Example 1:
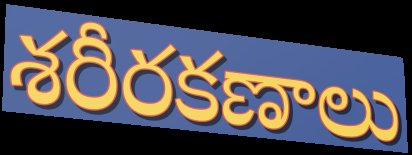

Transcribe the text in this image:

శరీరకణాలు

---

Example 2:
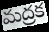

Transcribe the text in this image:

మద్రక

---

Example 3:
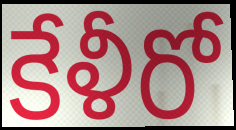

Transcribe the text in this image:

కేళీరో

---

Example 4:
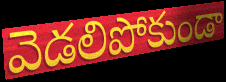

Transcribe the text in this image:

వెడలిపోకుండా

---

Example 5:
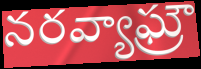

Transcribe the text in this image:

నరవ్యాఘ్రౌ